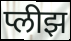
प्लीझ